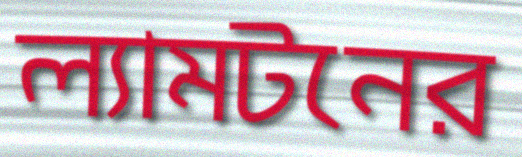
ল্যামটনের